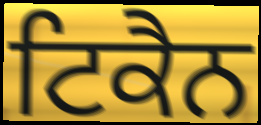
ਟਿਕੈਨ